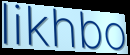
likhbo